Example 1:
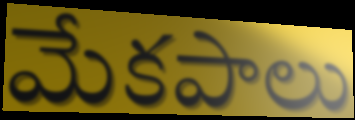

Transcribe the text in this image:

మేకపాలు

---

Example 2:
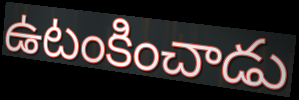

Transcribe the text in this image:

ఉటంకించాడు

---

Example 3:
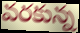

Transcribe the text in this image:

వరకున్న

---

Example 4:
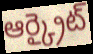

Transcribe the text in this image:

ఆర్క్రైట్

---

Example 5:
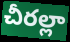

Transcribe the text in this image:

చీరల్లా